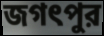
জগৎপুর